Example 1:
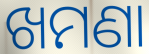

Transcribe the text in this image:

ଖମଣା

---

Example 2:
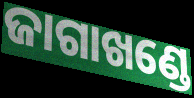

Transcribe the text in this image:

ଜାଗାଖଣ୍ଡେ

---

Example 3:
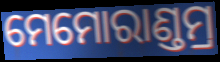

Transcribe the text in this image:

ମେମୋରାଣ୍ଡମ୍ର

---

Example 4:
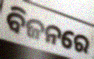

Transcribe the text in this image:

ବିଜନରେ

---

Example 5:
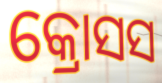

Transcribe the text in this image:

କ୍ରୋସସ